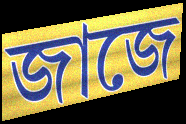
জাজে